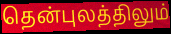
தென்புலத்திலும்